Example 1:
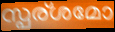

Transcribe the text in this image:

സ്പര്ശമോ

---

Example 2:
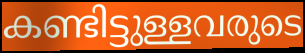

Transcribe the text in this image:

കണ്ടിട്ടുള്ളവരുടെ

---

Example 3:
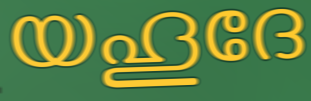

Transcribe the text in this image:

യഹൂദേ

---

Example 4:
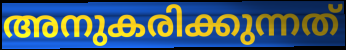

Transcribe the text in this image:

അനുകരിക്കുന്നത്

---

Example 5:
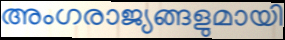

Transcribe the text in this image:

അംഗരാജ്യങ്ങളുമായി